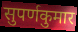
सुपर्णकुमार